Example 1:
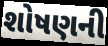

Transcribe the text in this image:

શોષણની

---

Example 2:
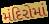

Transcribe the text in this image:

મંદિરોમાં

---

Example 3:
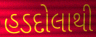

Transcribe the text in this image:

હડદોલાથી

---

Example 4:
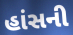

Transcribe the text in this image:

હાંસની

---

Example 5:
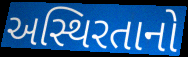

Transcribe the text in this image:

અસ્થિરતાનો